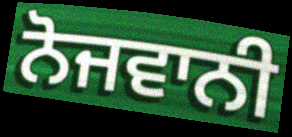
ਨੋਜਵਾਨੀ